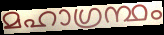
മഹാഗ്രന്ഥം